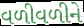
વળીવળીને